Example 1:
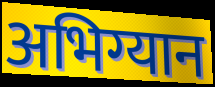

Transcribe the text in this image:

अभिग्यान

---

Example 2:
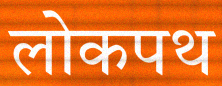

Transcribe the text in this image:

लोकपथ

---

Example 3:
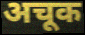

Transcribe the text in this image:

अचूक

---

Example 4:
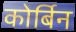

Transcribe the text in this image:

कोर्बिन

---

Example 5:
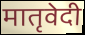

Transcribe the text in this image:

मातृवेदी